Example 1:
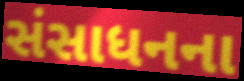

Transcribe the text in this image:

સંસાધનના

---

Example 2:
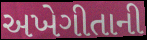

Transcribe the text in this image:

અખેગીતાની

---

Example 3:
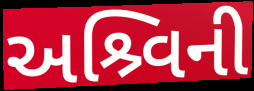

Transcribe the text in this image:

અશ્ર્વિની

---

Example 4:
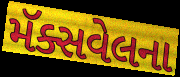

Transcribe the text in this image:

મૅક્સવેલના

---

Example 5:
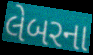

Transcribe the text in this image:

લેબરના